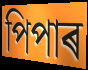
পিপাৰ